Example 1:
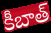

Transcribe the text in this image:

కీబాత్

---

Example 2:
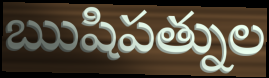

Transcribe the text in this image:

ఋషిపత్నుల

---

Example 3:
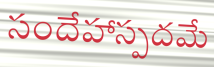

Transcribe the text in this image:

సందేహాస్పదమే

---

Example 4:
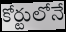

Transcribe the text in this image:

కోర్టులోనే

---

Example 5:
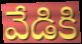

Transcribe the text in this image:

వేడికి